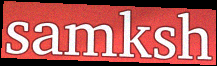
samksh